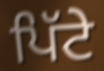
ਪਿੱਟੇ